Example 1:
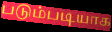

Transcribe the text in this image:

படும்படியாக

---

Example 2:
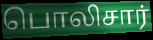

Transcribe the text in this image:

பொலிசார்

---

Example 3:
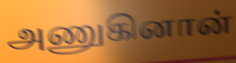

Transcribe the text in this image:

அணுகினான்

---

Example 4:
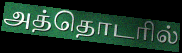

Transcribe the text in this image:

அத்தொடரில்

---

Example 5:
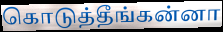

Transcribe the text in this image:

கொடுத்தீங்கன்னா